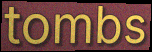
tombs